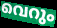
വെറും